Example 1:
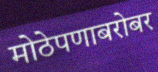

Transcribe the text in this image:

मोठेपणाबरोबर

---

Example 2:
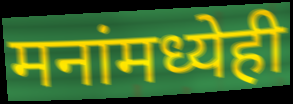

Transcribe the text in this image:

मनांमध्येही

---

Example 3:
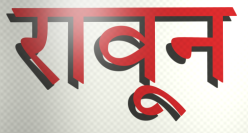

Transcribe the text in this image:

रावून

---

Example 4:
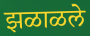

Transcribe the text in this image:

झळाळले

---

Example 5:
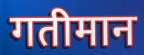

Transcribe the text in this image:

गतीमान